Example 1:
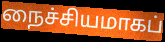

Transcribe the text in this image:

நைச்சியமாகப்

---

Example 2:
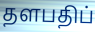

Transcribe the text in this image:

தளபதிப்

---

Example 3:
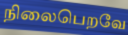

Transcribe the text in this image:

நிலைபெறவே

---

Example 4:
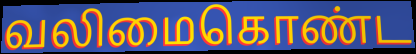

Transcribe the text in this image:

வலிமைகொண்ட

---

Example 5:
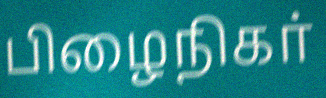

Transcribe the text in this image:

பிழைநிகர்